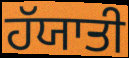
ਹੱਯਾਤੀ